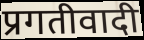
प्रगतीवादी